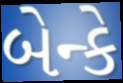
બેન્કે